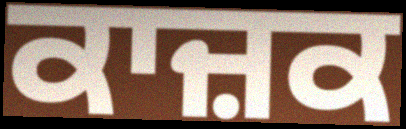
ਕਾਜ਼ਕ